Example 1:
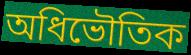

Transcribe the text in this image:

অধিভৌতিক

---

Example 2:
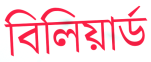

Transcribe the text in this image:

বিলিয়ার্ড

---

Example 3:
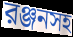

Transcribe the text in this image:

রঞ্জনসহ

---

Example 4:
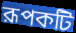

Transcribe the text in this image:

রূপকটি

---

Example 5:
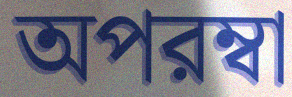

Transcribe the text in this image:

অপরম্বা